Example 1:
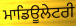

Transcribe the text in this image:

ਮਾਡਿਊਲੇਟਰੀ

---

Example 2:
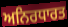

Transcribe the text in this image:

ਅਨਿਰਧਾਰਤ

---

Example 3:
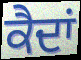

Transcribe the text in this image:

ਕੈਦਾਂ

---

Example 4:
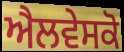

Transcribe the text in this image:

ਐਲਵੇਸਕੋ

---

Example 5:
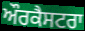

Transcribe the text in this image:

ਔਰਕੈਸਟਰਾ